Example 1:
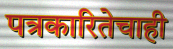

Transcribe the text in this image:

पत्रकारितेचाही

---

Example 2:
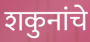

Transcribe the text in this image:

शकुनांचे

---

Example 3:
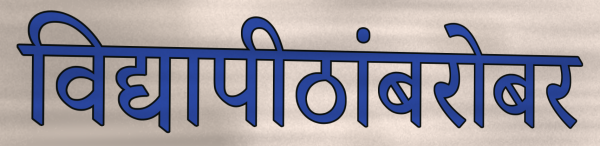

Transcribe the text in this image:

विद्यापीठांबरोबर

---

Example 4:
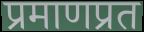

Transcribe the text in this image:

प्रमाणप्रत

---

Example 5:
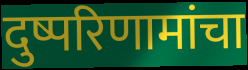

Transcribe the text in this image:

दुष्परिणामांचा